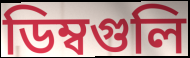
ডিম্বগুলি